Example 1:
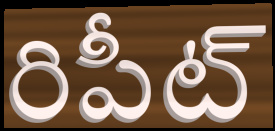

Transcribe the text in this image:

రిపీట్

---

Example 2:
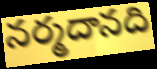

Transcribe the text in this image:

నర్మదానది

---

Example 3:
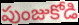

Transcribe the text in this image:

పుంజుకోడి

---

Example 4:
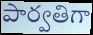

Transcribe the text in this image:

పార్వతిగా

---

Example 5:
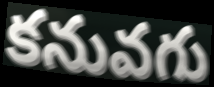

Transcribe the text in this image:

కనువగు